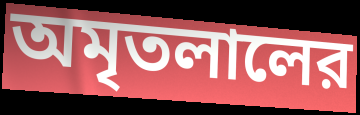
অমৃতলালের